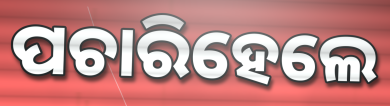
ପଚାରିହେଲେ